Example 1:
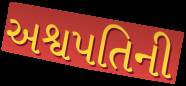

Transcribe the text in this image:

અશ્વપતિની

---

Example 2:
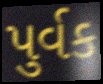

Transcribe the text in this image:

પુર્વક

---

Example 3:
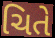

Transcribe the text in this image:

ચિતે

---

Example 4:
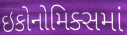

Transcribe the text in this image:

ઇકોનોમિક્સમાં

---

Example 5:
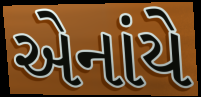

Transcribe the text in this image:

એનાંયે